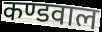
कण्डवाल